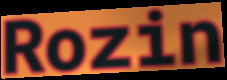
Rozin